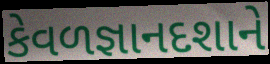
કેવળજ્ઞાનદશાને